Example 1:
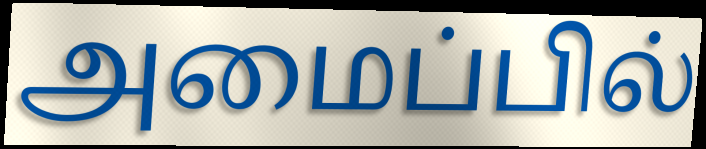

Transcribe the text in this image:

அமைப்பில்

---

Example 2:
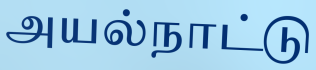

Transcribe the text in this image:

அயல்நாட்டு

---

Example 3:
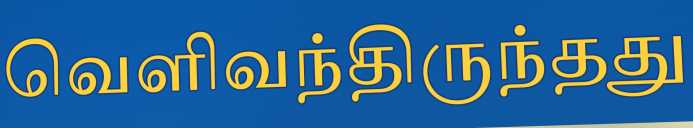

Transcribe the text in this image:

வெளிவந்திருந்தது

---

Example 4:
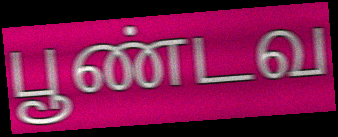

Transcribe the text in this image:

பூண்டவ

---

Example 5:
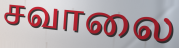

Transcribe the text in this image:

சவாலை